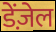
डेंज़ेल